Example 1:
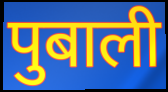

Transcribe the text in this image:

पुबाली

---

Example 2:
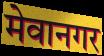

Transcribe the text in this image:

मेवानगर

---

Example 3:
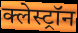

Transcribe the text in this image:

क्लेस्ट्रॉन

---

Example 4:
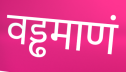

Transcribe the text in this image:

वड्ढमाणं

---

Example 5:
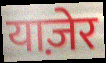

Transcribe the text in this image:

याज़ेर